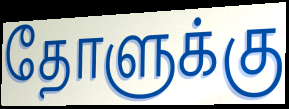
தோளுக்கு